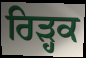
ਰਿੜ੍ਹਕ